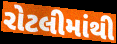
રોટલીમાંથી